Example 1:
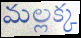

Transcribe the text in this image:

మల్లక్క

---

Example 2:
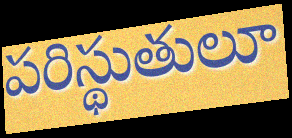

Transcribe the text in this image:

పరిస్థుతులూ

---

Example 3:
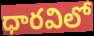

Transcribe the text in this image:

ధారవిలో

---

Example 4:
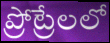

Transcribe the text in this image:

ప్రోట్రేలలో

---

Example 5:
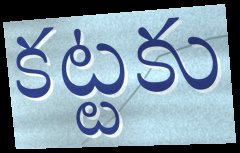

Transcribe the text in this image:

కట్టకు